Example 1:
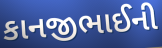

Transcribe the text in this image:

કાનજીભાઈની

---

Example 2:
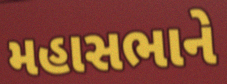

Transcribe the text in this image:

મહાસભાને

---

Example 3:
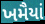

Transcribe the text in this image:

ખમૈયાં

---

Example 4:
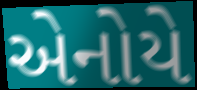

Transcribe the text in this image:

એનોયે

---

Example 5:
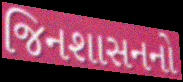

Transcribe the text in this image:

જિનશાસનનો